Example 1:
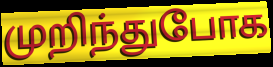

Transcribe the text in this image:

முறிந்துபோக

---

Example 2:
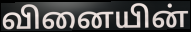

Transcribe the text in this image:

வினையின்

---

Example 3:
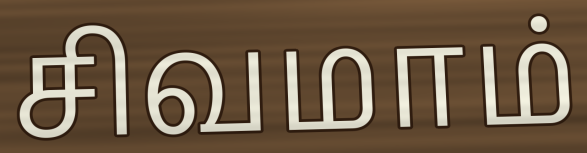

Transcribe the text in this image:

சிவமாம்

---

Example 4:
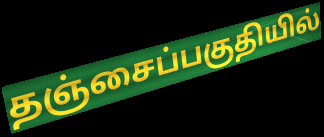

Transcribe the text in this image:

தஞ்சைப்பகுதியில்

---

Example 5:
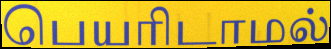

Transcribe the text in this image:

பெயரிடாமல்